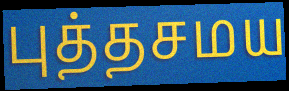
புத்தசமய